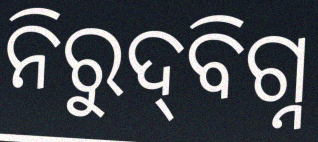
ନିରୁଦ୍‍ବିଗ୍ନ